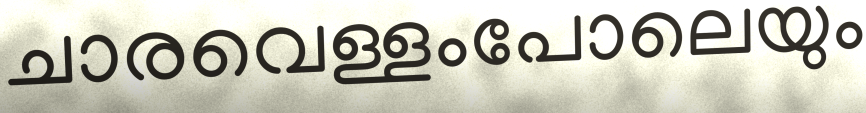
ചാരവെള്ളംപോലെയും